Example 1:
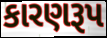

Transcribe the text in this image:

કારણરૂપ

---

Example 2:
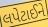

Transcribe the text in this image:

લપેટાઈને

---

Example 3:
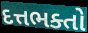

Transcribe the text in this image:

દત્તભક્તો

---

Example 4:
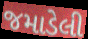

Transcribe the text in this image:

જમાડેલી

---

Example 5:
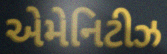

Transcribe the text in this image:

એમેનિટીઝ